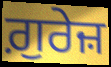
ਗ਼ੁਰੇਜ਼